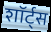
शॉर्ट्स